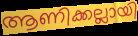
ആണിക്കല്ലായി